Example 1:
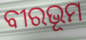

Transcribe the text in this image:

ବୀରଭୂମ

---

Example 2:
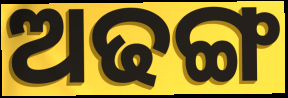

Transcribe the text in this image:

ଅଢଙ୍ଗ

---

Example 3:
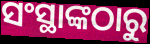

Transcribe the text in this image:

ସଂସ୍ଥାଙ୍କଠାରୁ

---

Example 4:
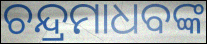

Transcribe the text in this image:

ଚନ୍ଦ୍ରମାଧବଙ୍କ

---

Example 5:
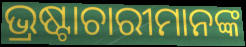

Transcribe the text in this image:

ଭ୍ରଷ୍ଟାଚାରୀମାନଙ୍କ